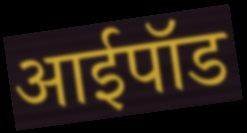
आईपॉड